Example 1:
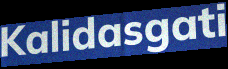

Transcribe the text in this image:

Kalidasgati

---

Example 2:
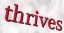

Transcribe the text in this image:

thrives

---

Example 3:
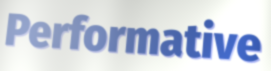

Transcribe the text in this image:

Performative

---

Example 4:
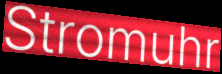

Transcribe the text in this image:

Stromuhr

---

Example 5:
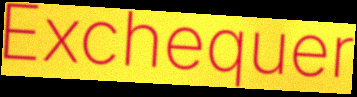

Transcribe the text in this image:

Exchequer